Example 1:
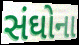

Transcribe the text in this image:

સંઘોના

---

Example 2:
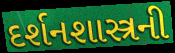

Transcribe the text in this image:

દર્શનશાસ્ત્રની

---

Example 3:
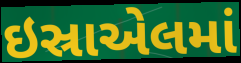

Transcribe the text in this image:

ઇસ્રાએલમાં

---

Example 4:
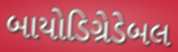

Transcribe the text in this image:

બાયોડિગ્રેડેબલ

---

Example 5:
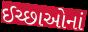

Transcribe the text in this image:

ઈચ્છાઓનાં